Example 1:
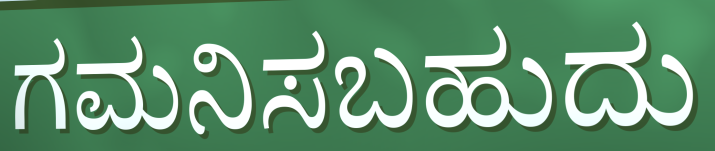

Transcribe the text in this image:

ಗಮನಿಸಬಹುದು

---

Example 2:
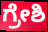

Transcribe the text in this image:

ಗ್ರೇಶಿ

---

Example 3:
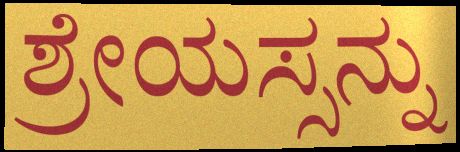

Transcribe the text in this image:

ಶ್ರೇಯಸ್ಸನ್ನು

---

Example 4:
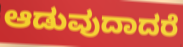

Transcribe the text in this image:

ಆಡುವುದಾದರೆ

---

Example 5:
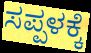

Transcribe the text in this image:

ಸಪ್ಪಳಕ್ಕೆ